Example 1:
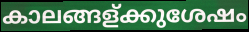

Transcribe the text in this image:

കാലങ്ങള്ക്കുശേഷം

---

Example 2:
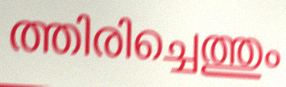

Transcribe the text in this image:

ത്തിരിച്ചെത്തും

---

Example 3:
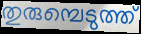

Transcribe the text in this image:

തുരുമ്പെടുത്ത്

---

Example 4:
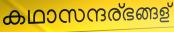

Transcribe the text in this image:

കഥാസന്ദര്ഭങ്ങള്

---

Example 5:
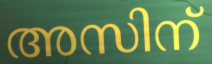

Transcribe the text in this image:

അസിന്